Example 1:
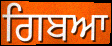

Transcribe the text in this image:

ਗਿਬਆ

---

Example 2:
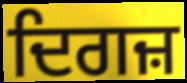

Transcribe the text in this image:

ਦਿਗਜ਼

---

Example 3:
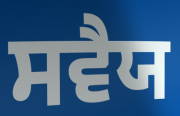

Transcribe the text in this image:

ਸਵੈਯ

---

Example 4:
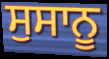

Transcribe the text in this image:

ਸੁਸਾਨੂ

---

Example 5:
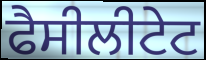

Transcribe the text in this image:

ਫੈਸੀਲੀਟੇਟ